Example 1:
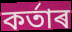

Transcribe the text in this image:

কৰ্তাৰ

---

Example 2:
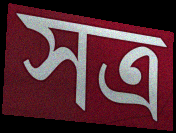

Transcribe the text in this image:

সত্ৰ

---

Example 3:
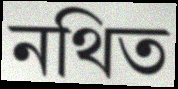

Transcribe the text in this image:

নথিত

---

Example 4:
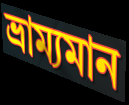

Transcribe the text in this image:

ভ্ৰাম্যমান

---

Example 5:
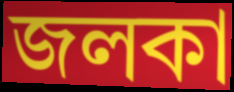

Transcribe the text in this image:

জলকা